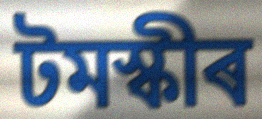
টমস্কীৰ